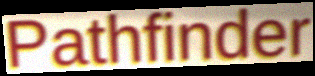
Pathfinder